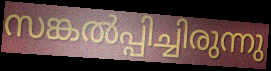
സങ്കൽപ്പിച്ചിരുന്നു